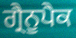
ਗ੍ਰੈਨੂਪੈਕ